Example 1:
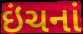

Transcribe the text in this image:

ઇંચનાં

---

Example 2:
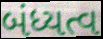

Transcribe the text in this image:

બંધ્યત્વ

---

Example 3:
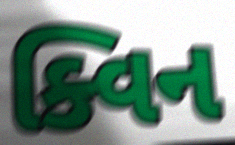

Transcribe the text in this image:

ક્વિન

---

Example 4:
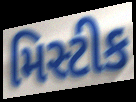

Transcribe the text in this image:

મિસ્ટીક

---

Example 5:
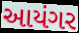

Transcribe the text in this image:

આયંગર